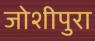
जोशीपुरा